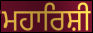
ਮਹਾਰਿਸ਼ੀ